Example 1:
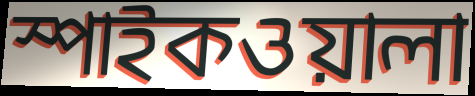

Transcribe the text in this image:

স্পাইকওয়ালা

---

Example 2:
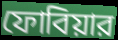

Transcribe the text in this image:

ফোবিয়ার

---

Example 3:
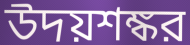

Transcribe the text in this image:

উদয়শঙ্কর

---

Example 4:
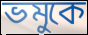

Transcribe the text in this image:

ভমুকে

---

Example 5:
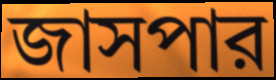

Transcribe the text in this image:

জাসপার